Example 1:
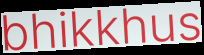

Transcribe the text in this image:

bhikkhus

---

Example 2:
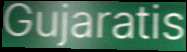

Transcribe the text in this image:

Gujaratis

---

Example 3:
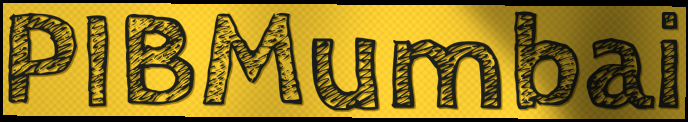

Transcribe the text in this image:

PIBMumbai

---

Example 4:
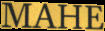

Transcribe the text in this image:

MAHE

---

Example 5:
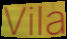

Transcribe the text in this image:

Vila